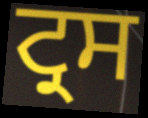
ਟ੍ਰਸ